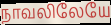
நாவலிலேயே